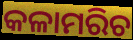
କଳାମରିଚ